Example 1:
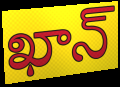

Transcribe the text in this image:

ఖాన్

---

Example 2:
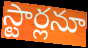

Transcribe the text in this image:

స్టార్లనూ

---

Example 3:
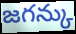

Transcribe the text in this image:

జగన్కు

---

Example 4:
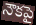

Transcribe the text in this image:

నౌకపై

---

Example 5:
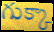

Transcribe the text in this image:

గుక్కా